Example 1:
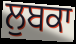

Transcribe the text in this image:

ਲੁਬਕਾ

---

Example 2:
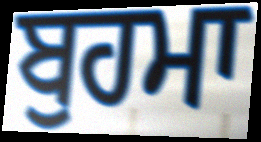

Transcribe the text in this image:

ਬੁਹਮਾ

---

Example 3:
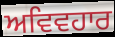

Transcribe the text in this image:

ਅਵਿਵਹਾਰ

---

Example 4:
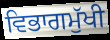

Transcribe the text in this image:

ਵਿਭਾਗਮੁੱਖੀ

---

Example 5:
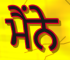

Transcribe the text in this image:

ਮੈਂਨੇ